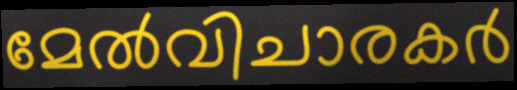
മേൽവിചാരകർ